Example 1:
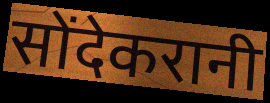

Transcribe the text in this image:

सोंदेकरानी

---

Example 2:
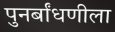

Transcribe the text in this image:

पुनर्बांधणीला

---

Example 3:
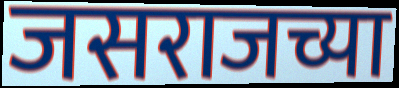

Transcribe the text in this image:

जसराजच्या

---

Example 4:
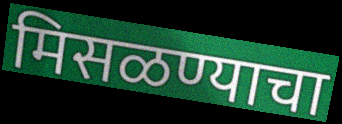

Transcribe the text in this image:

मिसळण्याचा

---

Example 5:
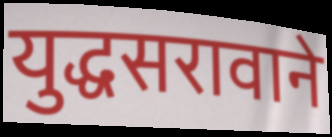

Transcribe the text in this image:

युद्धसरावाने